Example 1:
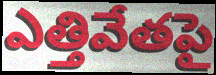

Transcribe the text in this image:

ఎత్తివేతపై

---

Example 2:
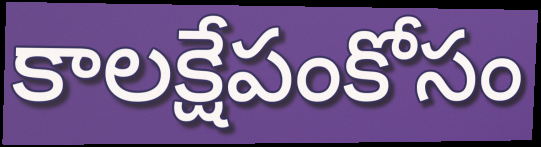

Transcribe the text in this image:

కాలక్షేపంకోసం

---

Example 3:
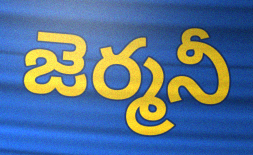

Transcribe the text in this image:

జెర్మనీ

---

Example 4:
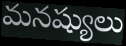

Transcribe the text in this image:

మనష్యులు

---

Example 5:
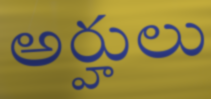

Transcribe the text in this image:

అర్హులు